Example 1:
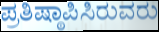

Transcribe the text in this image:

ಪ್ರತಿಷ್ಠಾಪಿಸಿರುವರು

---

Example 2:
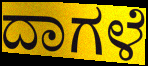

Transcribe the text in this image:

ದಾಗಳೆ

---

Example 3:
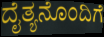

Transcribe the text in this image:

ದೈತ್ಯನೊಂದಿಗೆ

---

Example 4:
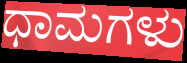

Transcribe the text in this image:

ಧಾಮಗಳು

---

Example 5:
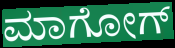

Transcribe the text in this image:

ಮಾಗೋಗ್